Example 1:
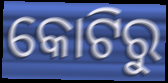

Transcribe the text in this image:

କୋଟିରୁ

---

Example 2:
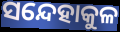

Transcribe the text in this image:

ସନ୍ଦେହାକୁଳ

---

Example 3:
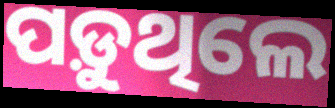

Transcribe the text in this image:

ପଡ଼ୁଥିଲେ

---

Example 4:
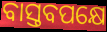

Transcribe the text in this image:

ବାସ୍ତବପକ୍ଷେ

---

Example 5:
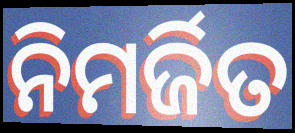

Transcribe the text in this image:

ନିମର୍ଜିତ